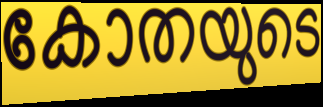
കോതയുടെ